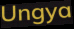
Ungya